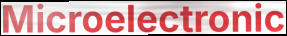
Microelectronic